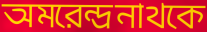
অমরেন্দ্রনাথকে